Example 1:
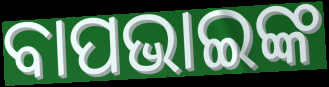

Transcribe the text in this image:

ବାପଭାଇଙ୍କ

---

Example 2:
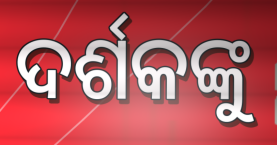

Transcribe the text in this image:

ଦର୍ଶକଙ୍କୁ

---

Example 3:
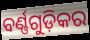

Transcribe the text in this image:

ବର୍ଣ୍ଣଗୁଡ଼ିକର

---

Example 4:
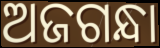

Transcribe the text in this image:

ଅଜଗନ୍ଧା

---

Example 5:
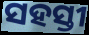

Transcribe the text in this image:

ସହସ୍ତୀ